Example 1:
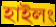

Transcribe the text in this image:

হাইলং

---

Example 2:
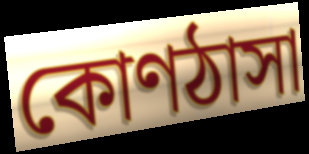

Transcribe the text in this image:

কোণঠাসা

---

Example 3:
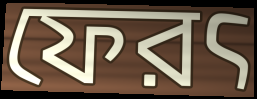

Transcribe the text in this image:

ফেরৎ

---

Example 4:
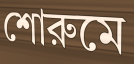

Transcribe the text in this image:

শোরুমে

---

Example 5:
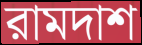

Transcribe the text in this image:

রামদাশ